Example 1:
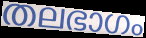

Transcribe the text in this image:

തലഭാഗം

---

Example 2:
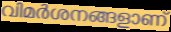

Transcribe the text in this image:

വിമർശനങ്ങളാണ്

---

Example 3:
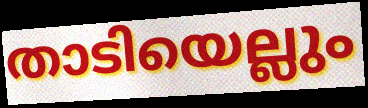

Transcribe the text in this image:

താടിയെല്ലും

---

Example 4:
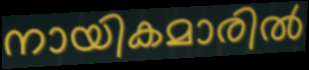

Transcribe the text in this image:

നായികമാരിൽ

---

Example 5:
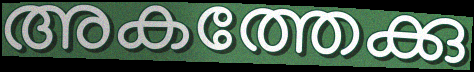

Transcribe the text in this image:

അകത്തേക്കു